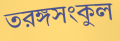
তরঙ্গসংকুল